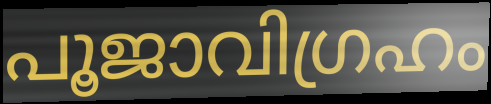
പൂജാവിഗ്രഹം